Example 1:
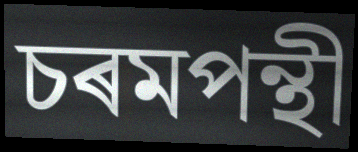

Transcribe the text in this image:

চৰমপন্থী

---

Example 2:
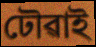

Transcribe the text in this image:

ঢৌৱাই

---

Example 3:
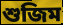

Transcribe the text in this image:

শুজিম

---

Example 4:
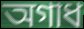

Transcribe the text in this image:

অগাধ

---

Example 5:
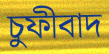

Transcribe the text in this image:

চুফীবাদ